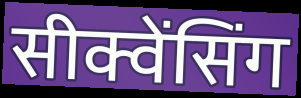
सीक्वेंसिंग